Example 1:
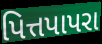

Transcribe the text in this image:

પિત્તપાપરા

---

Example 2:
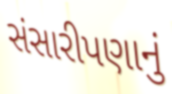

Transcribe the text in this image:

સંસારીપણાનું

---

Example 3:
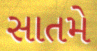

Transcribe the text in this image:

સાતમે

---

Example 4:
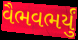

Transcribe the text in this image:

વૈભવભર્યું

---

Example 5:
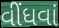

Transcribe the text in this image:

વીંધવાં